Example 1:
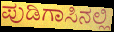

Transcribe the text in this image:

ಪುಡಿಗಾಸಿನಲ್ಲಿ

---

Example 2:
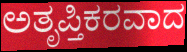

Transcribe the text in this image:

ಅತೃಪ್ತಿಕರವಾದ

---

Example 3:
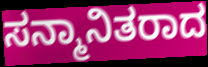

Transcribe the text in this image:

ಸನ್ಮಾನಿತರಾದ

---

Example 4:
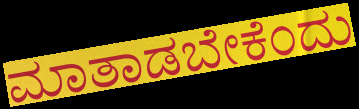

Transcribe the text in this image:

ಮಾತಾಡಬೇಕೆಂದು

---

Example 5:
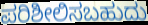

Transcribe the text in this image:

ಪರಿಶೀಲಿಸಬಹುದು